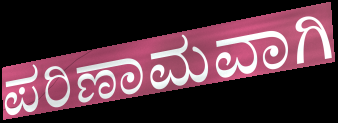
ಪರಿಣಾಮವಾಗಿ